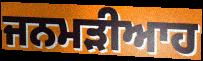
ਜਨਮੜੀਆਹ